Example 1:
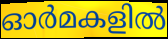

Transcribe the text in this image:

ഓർമകളിൽ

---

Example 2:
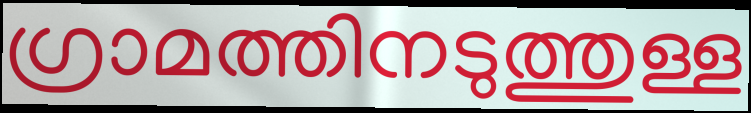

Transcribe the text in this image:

ഗ്രാമത്തിനടുത്തുള്ള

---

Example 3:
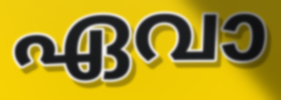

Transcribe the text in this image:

ഏവാ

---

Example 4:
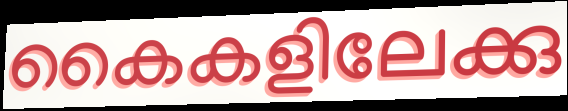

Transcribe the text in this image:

കൈകളിലേക്കു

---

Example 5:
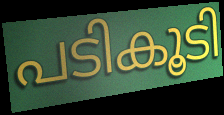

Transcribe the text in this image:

പടികൂടി